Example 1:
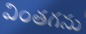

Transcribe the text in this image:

వింతగను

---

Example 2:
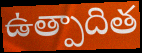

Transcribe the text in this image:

ఉత్పాదిత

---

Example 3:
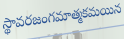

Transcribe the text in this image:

స్థావరజంగమాత్మకమయిన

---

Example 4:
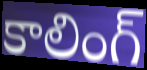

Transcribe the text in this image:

కాలింగ్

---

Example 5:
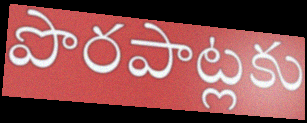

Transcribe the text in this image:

పొరపాట్లకు